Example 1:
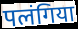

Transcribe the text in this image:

पलंगिया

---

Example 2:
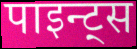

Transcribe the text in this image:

पाइन्ट्स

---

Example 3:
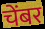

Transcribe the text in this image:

चेंबर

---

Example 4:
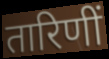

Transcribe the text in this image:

तारिणीं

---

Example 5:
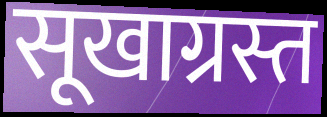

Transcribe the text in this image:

सूखाग्रस्‍त